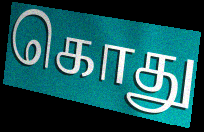
கொது